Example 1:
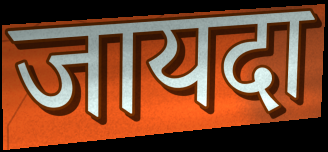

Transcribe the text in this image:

जायदा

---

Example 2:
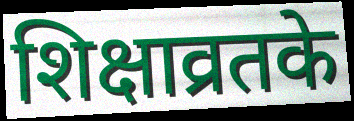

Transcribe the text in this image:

शिक्षाव्रतके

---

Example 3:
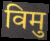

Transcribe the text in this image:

विमु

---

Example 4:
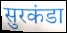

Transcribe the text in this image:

सुरकंडा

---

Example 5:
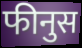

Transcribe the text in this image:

फीनुस